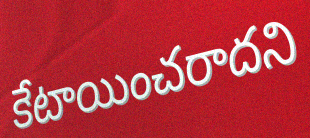
కేటాయించరాదని